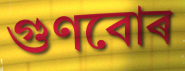
গুণবোৰ